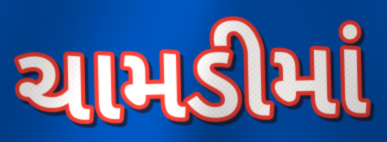
ચામડીમાં